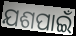
ଯଶପାଇଁ